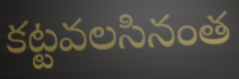
కట్టవలసినంత